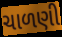
ચાળણી